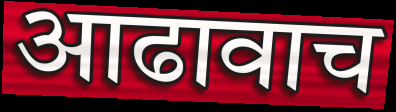
आढावाच